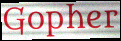
Gopher